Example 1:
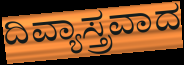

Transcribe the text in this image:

ದಿವ್ಯಾಸ್ತ್ರವಾದ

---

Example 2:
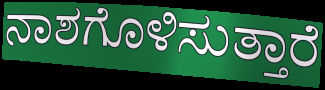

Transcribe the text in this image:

ನಾಶಗೊಳಿಸುತ್ತಾರೆ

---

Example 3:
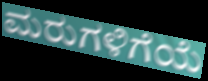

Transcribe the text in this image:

ಮರುಗಳಿಗೆಯೆ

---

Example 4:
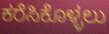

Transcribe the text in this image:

ಕರೆಸಿಕೊಳ್ಳಲು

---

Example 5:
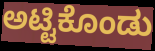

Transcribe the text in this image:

ಅಟ್ಟಿಕೊಂಡು